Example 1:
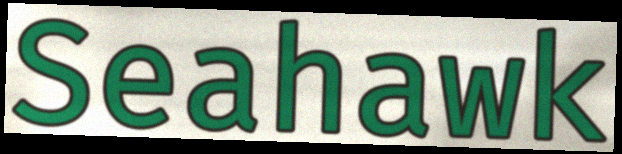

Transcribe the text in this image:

Seahawk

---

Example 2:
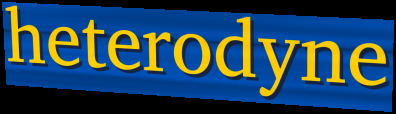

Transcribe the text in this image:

heterodyne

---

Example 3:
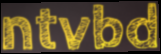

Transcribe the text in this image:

ntvbd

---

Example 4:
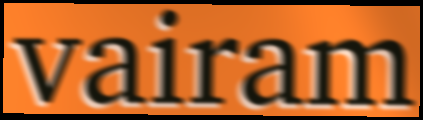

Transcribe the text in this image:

vairam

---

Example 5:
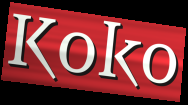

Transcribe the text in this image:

Koko